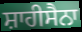
ਸ਼ਾਹੀਸੈਨਾ